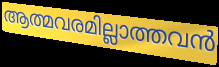
ആത്മവരമില്ലാത്തവൻ